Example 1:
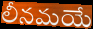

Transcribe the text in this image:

లీనమయే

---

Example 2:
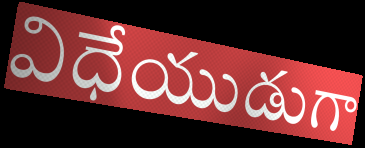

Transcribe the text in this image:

విధేయుడుగా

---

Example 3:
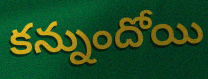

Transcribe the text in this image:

కన్నుందోయి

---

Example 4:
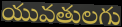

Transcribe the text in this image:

యువతులగు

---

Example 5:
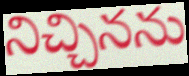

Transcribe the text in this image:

నిచ్చినను